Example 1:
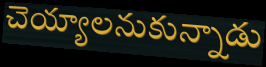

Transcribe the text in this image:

చెయ్యాలనుకున్నాడు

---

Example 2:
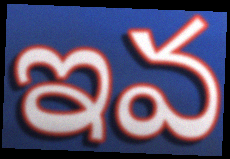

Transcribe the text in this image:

ఇవ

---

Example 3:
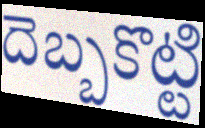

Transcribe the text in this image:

దెబ్బకొట్టి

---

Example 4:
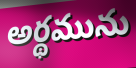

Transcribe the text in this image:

అర్థమును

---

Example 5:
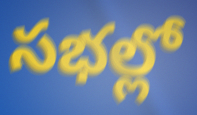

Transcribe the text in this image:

సభల్లో